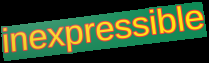
inexpressible